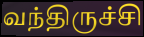
வந்திருச்சி